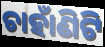
ଚାହାଁଣିଟି